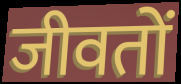
जीवतों